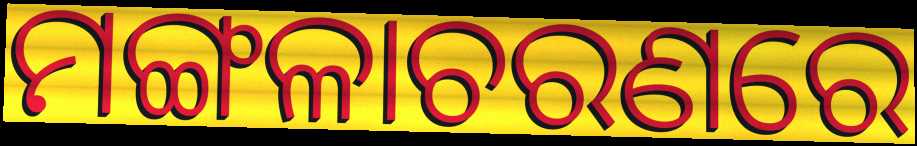
ମଙ୍ଗଳାଚରଣରେ